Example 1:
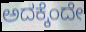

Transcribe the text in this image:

ಅದಕ್ಕೆಂದೇ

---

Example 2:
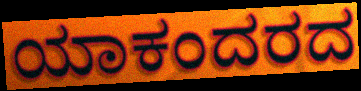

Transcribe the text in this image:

ಯಾಕಂದರದ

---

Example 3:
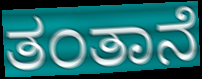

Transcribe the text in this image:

ತಂತಾನೆ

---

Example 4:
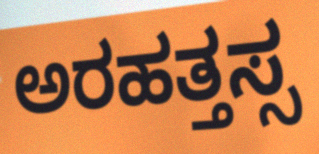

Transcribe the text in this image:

ಅರಹತ್ತಸ್ಸ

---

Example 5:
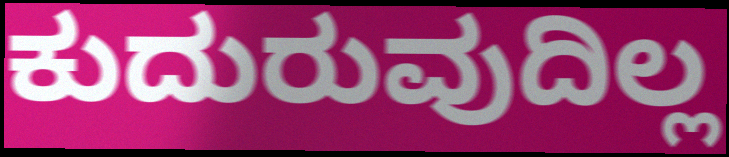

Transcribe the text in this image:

ಕುದುರುವುದಿಲ್ಲ